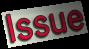
Issue